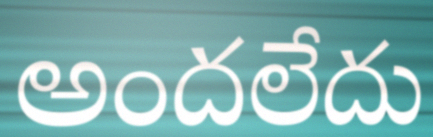
అందలేదు